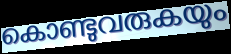
കൊണ്ടുവരുകയും